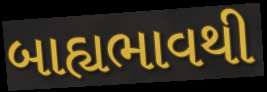
બાહ્યભાવથી